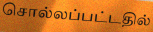
சொல்லப்பட்டதில்